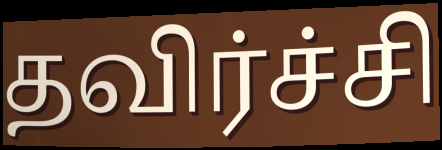
தவிர்ச்சி